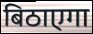
बिठाएगा